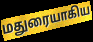
மதுரையாகிய